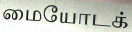
மையோடக்